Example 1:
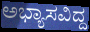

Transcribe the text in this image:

ಅಭ್ಯಾಸವಿದ್ದ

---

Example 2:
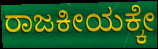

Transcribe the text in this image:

ರಾಜಕೀಯಕ್ಕೇ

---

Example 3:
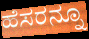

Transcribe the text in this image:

ಹೆಸರನ್ನೂ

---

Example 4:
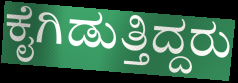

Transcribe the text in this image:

ಕೈಗಿಡುತ್ತಿದ್ದರು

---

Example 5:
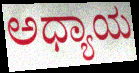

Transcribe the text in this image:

ಅಧ್ಯಾಯ